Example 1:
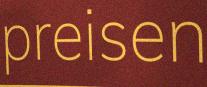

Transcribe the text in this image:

preisen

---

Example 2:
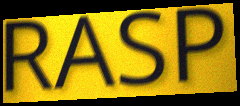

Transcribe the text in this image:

RASP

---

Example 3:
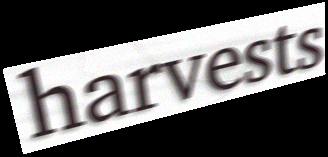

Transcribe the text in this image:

harvests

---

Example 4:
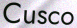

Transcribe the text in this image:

Cusco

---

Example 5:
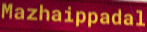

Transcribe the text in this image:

Mazhaippadal